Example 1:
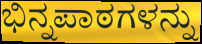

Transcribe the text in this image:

ಭಿನ್ನಪಾಠಗಳನ್ನು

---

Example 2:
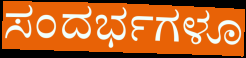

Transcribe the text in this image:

ಸಂದರ್ಭಗಳೂ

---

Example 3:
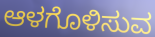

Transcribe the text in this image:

ಆಳಗೊಳಿಸುವ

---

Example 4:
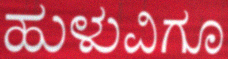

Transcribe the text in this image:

ಹುಳುವಿಗೂ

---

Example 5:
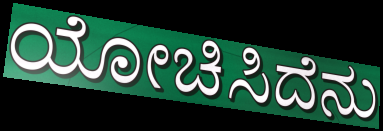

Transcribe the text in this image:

ಯೋಚಿಸಿದೆನು